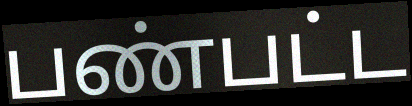
பண்பட்ட